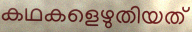
കഥകളെഴുതിയത്